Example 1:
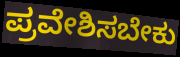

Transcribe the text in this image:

ಪ್ರವೇಶಿಸಬೇಕು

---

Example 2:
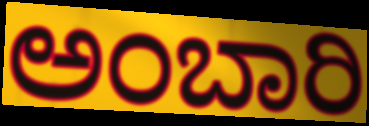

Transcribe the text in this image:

ಅಂಬಾರಿ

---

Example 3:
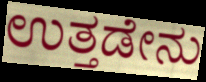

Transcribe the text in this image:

ಉತ್ತಡೇನು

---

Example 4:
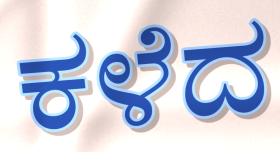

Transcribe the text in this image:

ಕಳೆದ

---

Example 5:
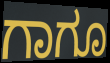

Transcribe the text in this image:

ಗಾಗೂ